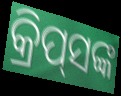
କ୍ରିପ୍‌ସଙ୍କ